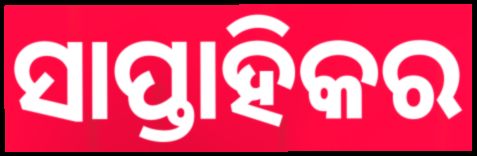
ସାପ୍ତାହିକର